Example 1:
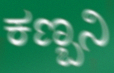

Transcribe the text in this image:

ಕಣ್ಬನಿ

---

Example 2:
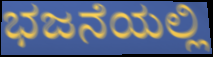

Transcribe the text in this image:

ಭಜನೆಯಲ್ಲಿ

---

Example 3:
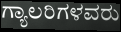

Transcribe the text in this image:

ಗ್ಯಾಲರಿಗಳವರು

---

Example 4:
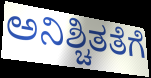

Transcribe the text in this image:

ಅನಿಶ್ಚಿತತೆಗೆ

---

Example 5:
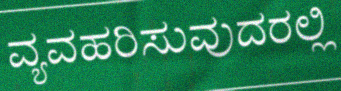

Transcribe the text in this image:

ವ್ಯವಹರಿಸುವುದರಲ್ಲಿ